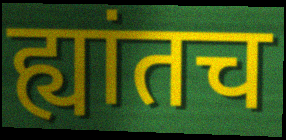
ह्यांतच